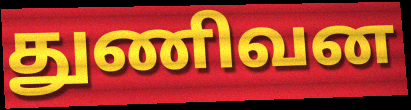
துணிவன